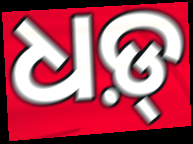
ଧଡ଼୍